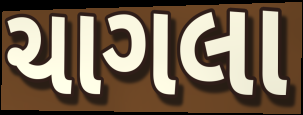
ચાગલા